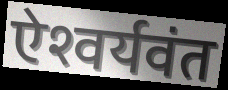
ऐश्वर्यवंत